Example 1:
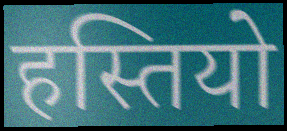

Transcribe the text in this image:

हस्तियो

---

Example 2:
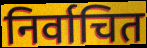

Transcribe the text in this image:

निर्वाचित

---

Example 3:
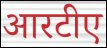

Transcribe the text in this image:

आरटीए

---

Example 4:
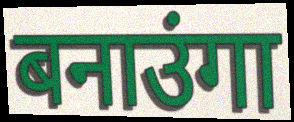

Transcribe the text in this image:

बनाउंगा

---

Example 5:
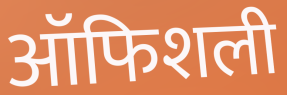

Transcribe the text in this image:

ऑफिशली